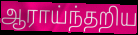
ஆராய்ந்தறிய